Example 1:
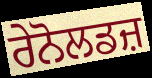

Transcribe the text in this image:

ਰੇਨੋਲਡਜ਼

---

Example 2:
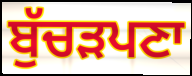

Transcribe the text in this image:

ਬੁੱਚੜਪਣਾ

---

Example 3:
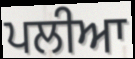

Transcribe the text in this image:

ਪਲੀਆ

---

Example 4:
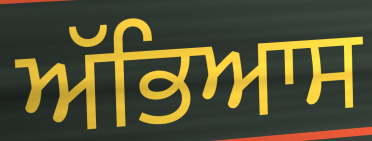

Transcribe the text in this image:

ਅੱਭਿਆਸ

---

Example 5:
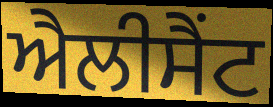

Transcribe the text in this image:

ਐਲੀਸੈਂਟ